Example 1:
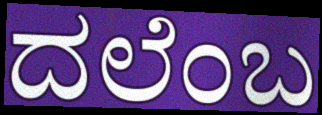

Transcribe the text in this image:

ದಲೆಂಬ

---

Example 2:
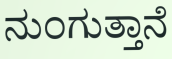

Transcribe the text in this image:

ನುಂಗುತ್ತಾನೆ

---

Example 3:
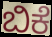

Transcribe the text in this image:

ಬಿಕೆ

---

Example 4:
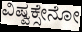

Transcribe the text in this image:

ವಿಷ್ವಕ್ಸೇನೋ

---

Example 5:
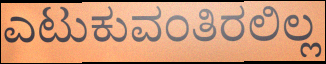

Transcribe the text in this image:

ಎಟುಕುವಂತಿರಲಿಲ್ಲ